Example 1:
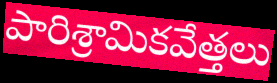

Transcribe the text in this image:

పారిశ్రామికవేత్తలు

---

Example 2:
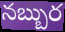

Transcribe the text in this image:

నబ్బుర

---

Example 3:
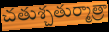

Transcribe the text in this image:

చతుశ్చతుర్మాత్రా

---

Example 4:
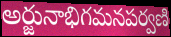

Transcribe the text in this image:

అర్జునాభిగమనపర్వణి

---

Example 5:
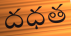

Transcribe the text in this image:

దధత